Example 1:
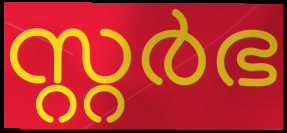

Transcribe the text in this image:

സ്റ്റർഭ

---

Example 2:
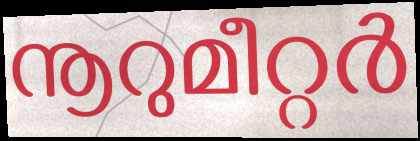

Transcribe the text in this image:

നൂറുമീറ്റർ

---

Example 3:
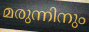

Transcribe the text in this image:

മരുന്നിനും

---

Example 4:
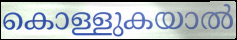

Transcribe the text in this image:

കൊള്ളുകയാൽ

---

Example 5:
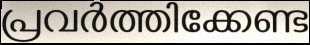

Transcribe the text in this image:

പ്രവർത്തിക്കേണ്ട